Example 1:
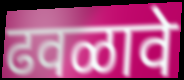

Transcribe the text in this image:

ढवळावे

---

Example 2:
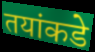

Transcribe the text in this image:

तयांकडे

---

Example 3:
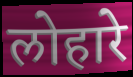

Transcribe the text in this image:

लोहारे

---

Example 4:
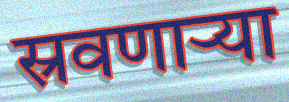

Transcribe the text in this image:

स्रवणाऱ्या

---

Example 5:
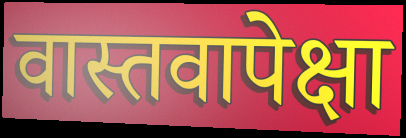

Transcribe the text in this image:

वास्तवापेक्षा